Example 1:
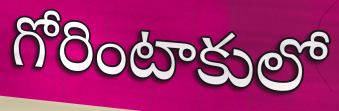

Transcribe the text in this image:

గోరింటాకులో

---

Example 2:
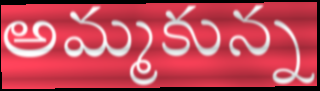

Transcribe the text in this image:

అమ్మకున్న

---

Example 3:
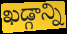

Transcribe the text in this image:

ఖడ్గాన్ని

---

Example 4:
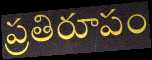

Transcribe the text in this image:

ప్రతిరూపం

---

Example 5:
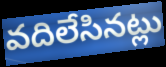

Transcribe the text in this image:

వదిలేసినట్లు